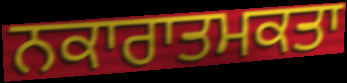
ਨਕਾਰਾਤਮਕਤਾ